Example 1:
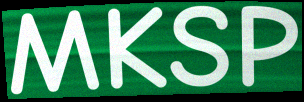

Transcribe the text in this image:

MKSP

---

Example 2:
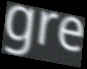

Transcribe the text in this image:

gre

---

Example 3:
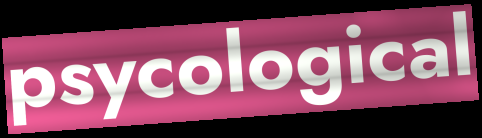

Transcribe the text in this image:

psycological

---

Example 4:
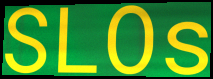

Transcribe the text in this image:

SLOs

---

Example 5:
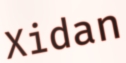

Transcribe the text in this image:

Xidan